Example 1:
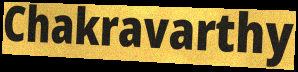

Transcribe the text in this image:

Chakravarthy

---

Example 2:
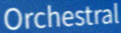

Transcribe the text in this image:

Orchestral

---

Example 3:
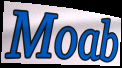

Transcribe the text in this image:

Moab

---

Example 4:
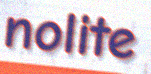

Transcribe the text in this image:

nolite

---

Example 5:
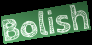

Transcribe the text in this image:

Bolish